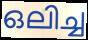
ഒലിച്ച